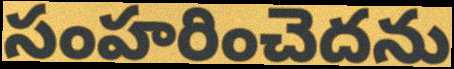
సంహరించెదను